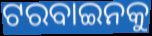
ଟରବାଇନକୁ